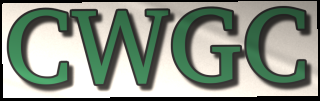
CWGC